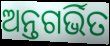
ଅନ୍ତଗର୍ଭିତ